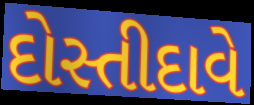
દોસ્તીદાવે